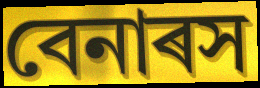
বেনাৰস